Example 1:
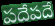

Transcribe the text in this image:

పదేపదే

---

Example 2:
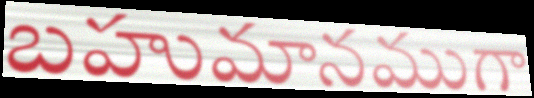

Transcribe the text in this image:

బహుమానముగా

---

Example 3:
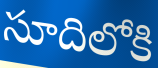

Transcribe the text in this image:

సూదిలోకి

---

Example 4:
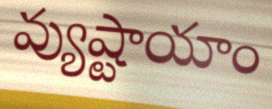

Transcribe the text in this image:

వ్యుష్టాయాం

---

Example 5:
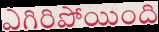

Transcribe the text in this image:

ఎగిరిపోయింది